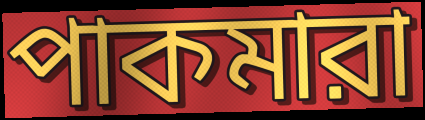
পাকমারা